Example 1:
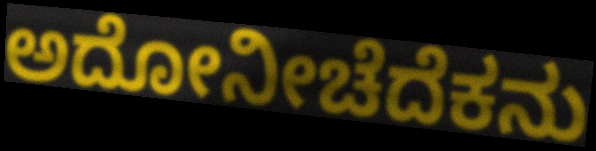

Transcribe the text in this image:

ಅದೋನೀಚೆದೆಕನು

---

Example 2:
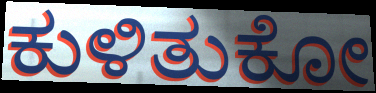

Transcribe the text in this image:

ಕುಳಿತುಕೋ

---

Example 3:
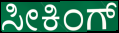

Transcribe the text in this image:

ಸೀಕಿಂಗ್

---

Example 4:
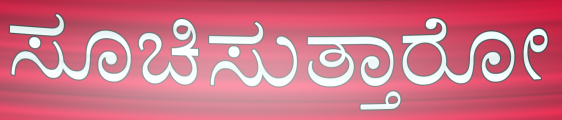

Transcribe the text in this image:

ಸೂಚಿಸುತ್ತಾರೋ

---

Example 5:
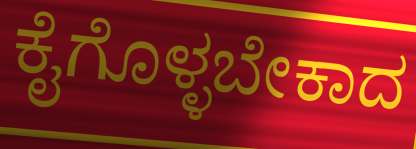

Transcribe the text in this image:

ಕೈಗೊಳ್ಳಬೇಕಾದ